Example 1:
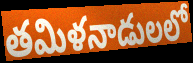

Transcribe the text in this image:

తమిళనాడులలో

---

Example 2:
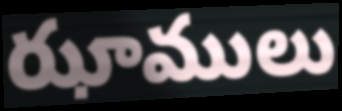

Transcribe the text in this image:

ఝాములు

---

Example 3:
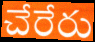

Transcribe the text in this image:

చేరేరు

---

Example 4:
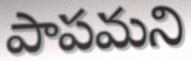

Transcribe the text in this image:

పాపమని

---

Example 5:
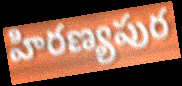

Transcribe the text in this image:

హిరణ్యపుర